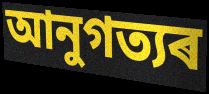
আনুগত্যৰ